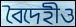
বৈদেহীও